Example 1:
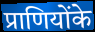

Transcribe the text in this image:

प्राणियोंके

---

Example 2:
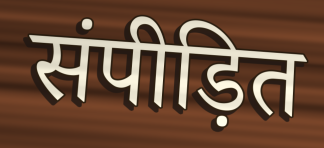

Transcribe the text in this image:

संपीड़ित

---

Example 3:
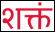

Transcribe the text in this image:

शक्तं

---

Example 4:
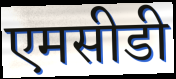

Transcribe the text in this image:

एमसीडी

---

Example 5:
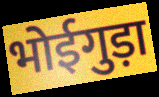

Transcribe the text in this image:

भोईगुड़ा